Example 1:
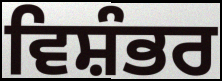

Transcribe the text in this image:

ਵਿਸ਼ੰਭਰ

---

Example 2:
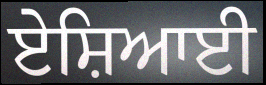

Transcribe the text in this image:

ਏਸ਼ਿਆਈ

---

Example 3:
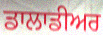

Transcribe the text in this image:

ਡਾਲਾਡੀਅਰ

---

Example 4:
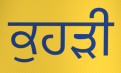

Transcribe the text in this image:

ਕੁਹੜੀ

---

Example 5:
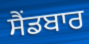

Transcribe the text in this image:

ਸੈਂਡਬਾਰ